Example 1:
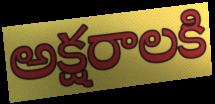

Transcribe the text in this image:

అక్షరాలకి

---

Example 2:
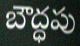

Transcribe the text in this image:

బౌద్ధపు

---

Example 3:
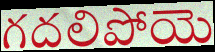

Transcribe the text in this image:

గదలిపోయె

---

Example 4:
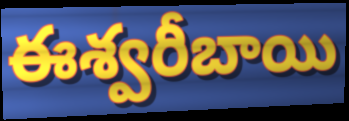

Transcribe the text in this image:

ఈశ్వరీబాయి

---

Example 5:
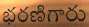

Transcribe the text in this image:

భరణిగారు